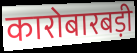
कारोबारबड़ी